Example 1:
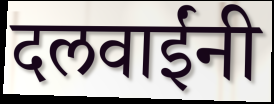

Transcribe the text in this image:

दलवाईंनी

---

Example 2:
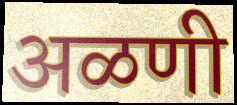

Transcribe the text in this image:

अळणी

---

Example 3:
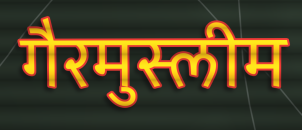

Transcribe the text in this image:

गैरमुस्लीम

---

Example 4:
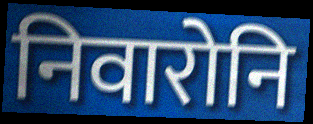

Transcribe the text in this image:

निवारोनि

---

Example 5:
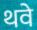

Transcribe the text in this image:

थवे